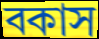
বকাস